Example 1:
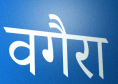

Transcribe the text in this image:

वगैरा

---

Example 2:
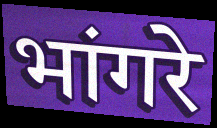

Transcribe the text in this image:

भांगरे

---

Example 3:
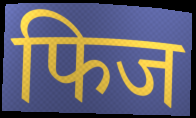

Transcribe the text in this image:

फिज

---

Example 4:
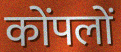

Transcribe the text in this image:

कोंपलों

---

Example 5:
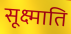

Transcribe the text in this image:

सूक्ष्माति